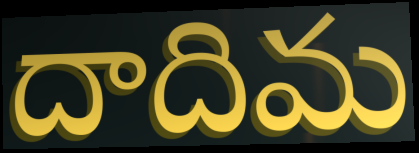
దాదిమ